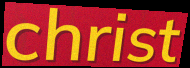
christ